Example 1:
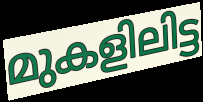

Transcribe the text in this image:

മുകളിലിട്ട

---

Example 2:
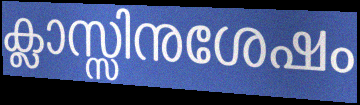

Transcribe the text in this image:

ക്ലാസ്സിനുശേഷം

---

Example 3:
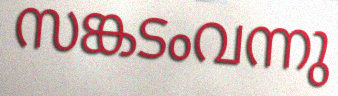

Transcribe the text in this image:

സങ്കടംവന്നു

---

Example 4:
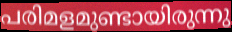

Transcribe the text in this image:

പരിമളമുണ്ടായിരുന്നു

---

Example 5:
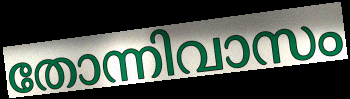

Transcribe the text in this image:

തോന്നിവാസം